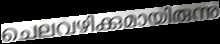
ചെലവഴിക്കുമായിരുന്നു